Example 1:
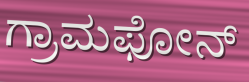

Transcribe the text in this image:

ಗ್ರಾಮಫೋನ್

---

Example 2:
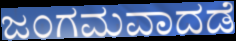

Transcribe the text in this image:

ಜಂಗಮವಾದಡೆ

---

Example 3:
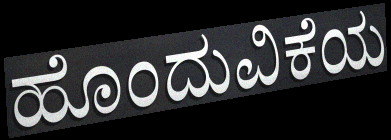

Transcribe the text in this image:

ಹೊಂದುವಿಕೆಯ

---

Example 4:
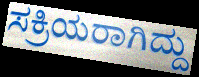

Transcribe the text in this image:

ಸಕ್ರಿಯರಾಗಿದ್ದು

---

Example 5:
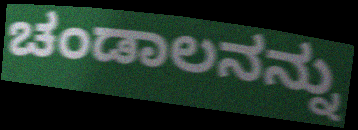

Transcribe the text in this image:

ಚಂಡಾಲನನ್ನು